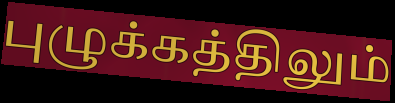
புழுக்கத்திலும்